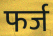
फर्ज